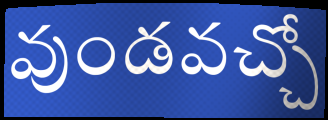
వుండవచ్చో